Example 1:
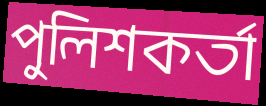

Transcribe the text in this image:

পুলিশকর্তা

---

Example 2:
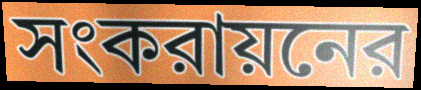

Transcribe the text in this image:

সংকরায়নের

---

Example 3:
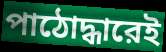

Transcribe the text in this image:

পাঠোদ্ধারেই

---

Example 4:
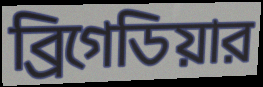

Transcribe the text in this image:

ব্রিগেডিয়ার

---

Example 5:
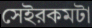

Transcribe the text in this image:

সেইরকমটা